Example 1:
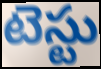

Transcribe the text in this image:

టెస్టు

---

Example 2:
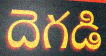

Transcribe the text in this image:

దెగడి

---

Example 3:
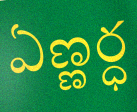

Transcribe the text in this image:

ఏణ్ణర్ధ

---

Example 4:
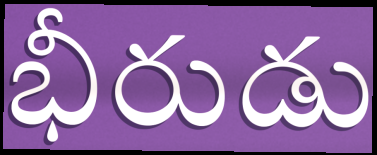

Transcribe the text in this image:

భీరుడు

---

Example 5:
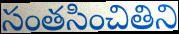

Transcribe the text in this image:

సంతసించితిని